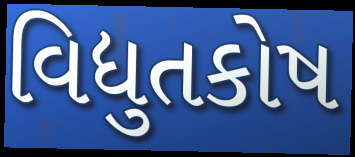
વિદ્યુતકોષ